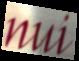
nui